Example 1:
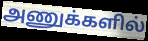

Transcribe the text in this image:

அணுக்களில்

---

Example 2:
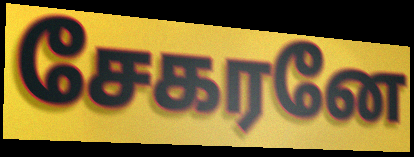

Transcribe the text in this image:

சேகரனே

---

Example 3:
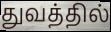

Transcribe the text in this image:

துவத்தில்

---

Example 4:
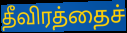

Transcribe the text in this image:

தீவிரத்தைச்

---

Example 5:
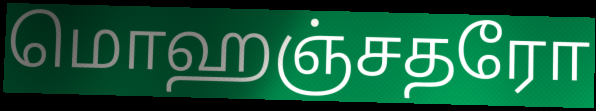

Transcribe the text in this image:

மொஹஞ்சதரோ